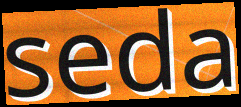
seda